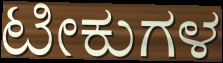
ಟೀಕುಗಳ